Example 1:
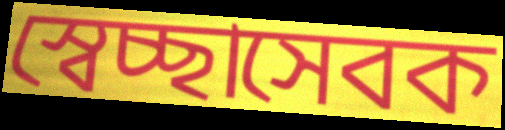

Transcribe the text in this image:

স্বেচ্ছাসেবক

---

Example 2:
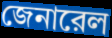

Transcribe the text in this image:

জেনারেল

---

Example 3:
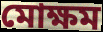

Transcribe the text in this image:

মোক্ষম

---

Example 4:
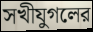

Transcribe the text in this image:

সখীযুগলের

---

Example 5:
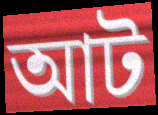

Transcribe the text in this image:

আট